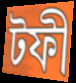
টফী